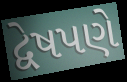
દ્વેષપણે